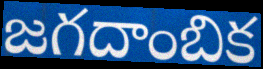
జగదాంబిక